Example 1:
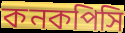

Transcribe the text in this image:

কনকপিসি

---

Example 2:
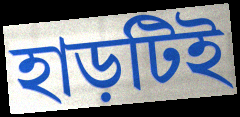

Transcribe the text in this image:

হাড়টিই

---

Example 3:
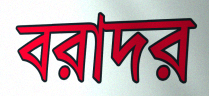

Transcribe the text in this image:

বরাদর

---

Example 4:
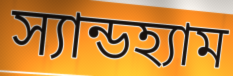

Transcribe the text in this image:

স্যান্ডহ্যাম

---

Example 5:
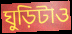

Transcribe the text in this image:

ঘুড়িটাও